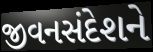
જીવનસંદેશને